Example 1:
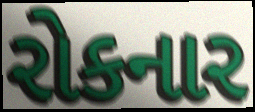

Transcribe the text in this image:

રોકનાર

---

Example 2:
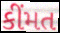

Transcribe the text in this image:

કીંમત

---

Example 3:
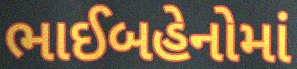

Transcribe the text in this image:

ભાઈબહેનોમાં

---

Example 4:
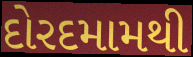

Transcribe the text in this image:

દોરદમામથી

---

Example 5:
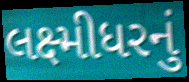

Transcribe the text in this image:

લક્ષ્મીધરનું